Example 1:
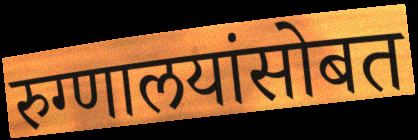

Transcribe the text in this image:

रुग्णालयांसोबत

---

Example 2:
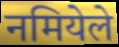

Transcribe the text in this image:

नमियेले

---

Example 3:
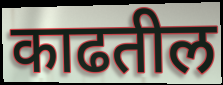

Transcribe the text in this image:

काढतील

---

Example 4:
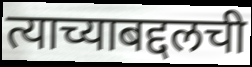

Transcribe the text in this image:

त्याच्याबद्दलची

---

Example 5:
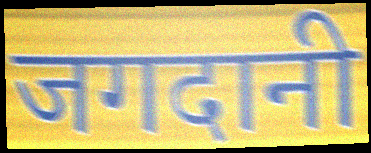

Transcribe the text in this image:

जगदानी